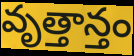
వృత్తాన్తం